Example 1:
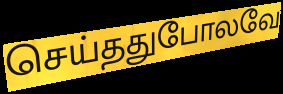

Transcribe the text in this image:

செய்ததுபோலவே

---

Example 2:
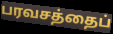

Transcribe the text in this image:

பரவசத்தைப்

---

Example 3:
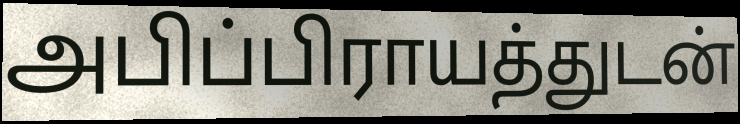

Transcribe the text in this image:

அபிப்பிராயத்துடன்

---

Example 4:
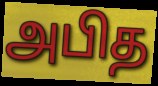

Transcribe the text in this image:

அபித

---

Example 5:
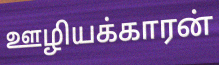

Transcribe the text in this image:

ஊழியக்காரன்